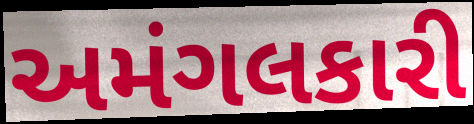
અમંગલકારી